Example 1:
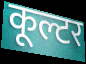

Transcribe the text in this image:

कूल्टर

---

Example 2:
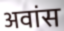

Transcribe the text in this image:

अवांस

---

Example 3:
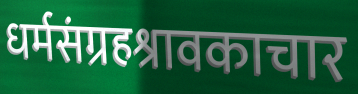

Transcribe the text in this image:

धर्मसंग्रहश्रावकाचार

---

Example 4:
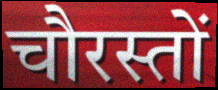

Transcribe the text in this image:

चौरस्तों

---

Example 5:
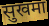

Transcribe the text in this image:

सुखमा